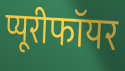
प्यूरीफॉयर